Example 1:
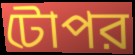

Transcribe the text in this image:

টোপর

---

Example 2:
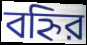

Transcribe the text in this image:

বহ্নির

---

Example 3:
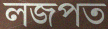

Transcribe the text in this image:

লজপত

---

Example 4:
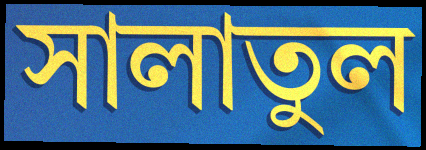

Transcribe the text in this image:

সালাতুল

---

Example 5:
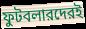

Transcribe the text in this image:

ফুটবলারদেরই